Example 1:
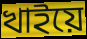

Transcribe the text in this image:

খাইয়ে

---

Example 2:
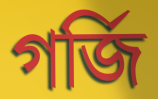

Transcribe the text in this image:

গৰ্জি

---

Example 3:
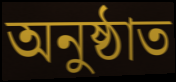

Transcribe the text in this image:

অনুষ্ঠাত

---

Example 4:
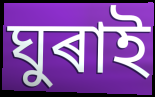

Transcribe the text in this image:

ঘুৰাই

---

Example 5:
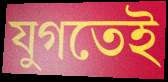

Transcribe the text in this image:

যুগতেই